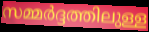
സമ്മർദ്ദത്തിലുള്ള